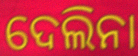
ଦେଲିନା